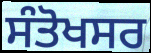
ਸੰਤੋਖਸਰ